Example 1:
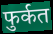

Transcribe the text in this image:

फुर्कत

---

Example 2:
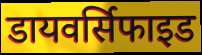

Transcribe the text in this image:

डायवर्सिफाइड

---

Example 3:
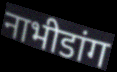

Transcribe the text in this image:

नाभीडांग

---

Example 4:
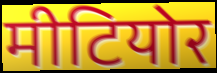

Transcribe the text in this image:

मीटियोर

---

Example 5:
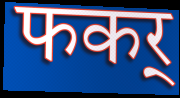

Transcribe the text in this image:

फकर्